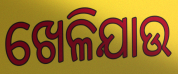
ଖେଳିଯାଉ